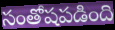
సంతోషపడింది